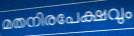
മതനിരപേക്ഷവും